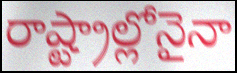
రాష్ట్రాల్లోనైనా